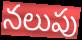
నలుపు